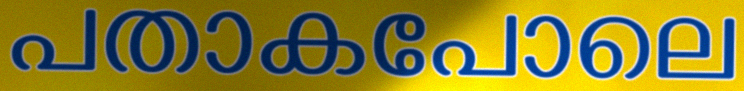
പതാകപോലെ